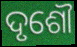
ଦୃଶୌ